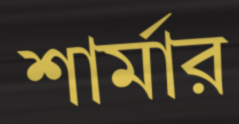
শার্মার